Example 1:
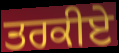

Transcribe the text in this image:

ਤਰਕੀਏ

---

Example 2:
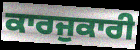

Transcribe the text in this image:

ਕਾਰਜੁਕਾਰੀ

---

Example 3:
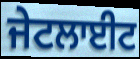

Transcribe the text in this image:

ਜੇਟਲਾਈਟ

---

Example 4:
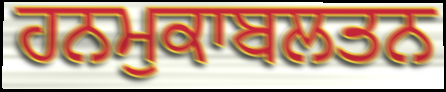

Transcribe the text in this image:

ਹਨਮੁਕਾਬਲਤਨ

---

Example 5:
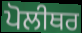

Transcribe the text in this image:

ਪੋਲੀਥਰ